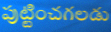
పుట్టించగలడు